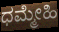
ಧಮ್ಮೇಹಿ